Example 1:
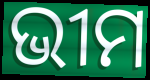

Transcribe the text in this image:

ଭୀମ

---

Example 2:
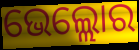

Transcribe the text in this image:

ଭେଲ୍ଲୋର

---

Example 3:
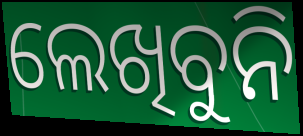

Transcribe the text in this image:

ଲେଖିବୁନି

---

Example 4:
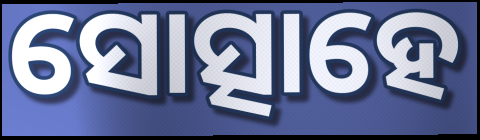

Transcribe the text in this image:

ସୋତ୍ସାହେ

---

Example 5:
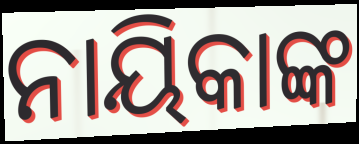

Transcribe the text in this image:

ନାୟିକାଙ୍କ